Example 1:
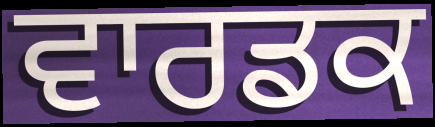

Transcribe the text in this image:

ਵਾਰਡਕ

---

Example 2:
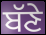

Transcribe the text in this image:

ਬੱਣੇ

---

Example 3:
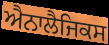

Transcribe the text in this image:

ਐਨਾਲੈਜਿਕਸ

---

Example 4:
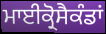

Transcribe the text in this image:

ਮਾਈਕ੍ਰੋਸੈਕੰਡਾਂ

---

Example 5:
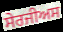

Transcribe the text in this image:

ਸੇਰਜੀਅਸ